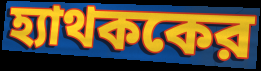
হ্যাথককের